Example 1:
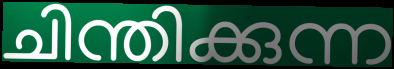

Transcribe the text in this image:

ചിന്തിക്കുന്ന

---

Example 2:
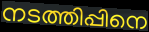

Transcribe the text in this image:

നടത്തിപ്പിനെ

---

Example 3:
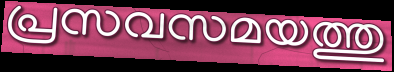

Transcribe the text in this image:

പ്രസവസമയത്തു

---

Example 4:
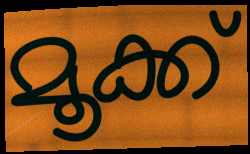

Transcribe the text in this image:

മൂക്ക്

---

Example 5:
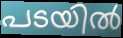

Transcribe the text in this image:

പടയിൽ